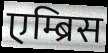
एम्ब्रिस